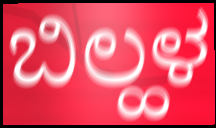
ಬಿಲ್ಹಳ